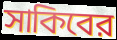
সাকিবের